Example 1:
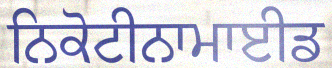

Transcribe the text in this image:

ਨਿਕੋਟੀਨਾਮਾਈਡ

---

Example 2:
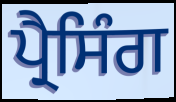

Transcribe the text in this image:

ਪ੍ਰੈਸਿੰਗ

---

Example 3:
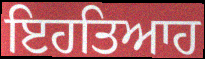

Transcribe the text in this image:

ਇਹਤਿਆਹ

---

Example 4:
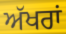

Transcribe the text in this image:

ਅੱਖਰਾਂ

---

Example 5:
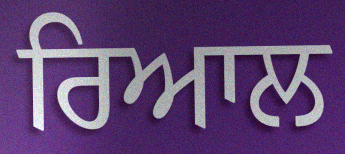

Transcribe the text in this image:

ਰਿਆਲ